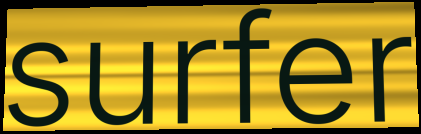
surfer